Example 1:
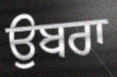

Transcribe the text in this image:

ਉਬਰਾ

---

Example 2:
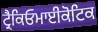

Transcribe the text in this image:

ਟ੍ਰੈਕਿਓਮਾਈਕੋਟਿਕ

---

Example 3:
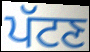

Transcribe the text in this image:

ਪੱਟਣ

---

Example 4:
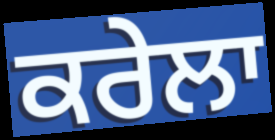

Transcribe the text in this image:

ਕਰੇਲਾ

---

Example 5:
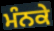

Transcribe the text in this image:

ਮੰਨਕੇ